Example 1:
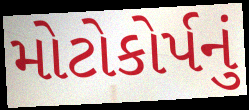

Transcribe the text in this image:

મોટોકોર્પનું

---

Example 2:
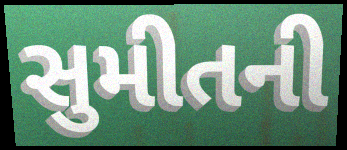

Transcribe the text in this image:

સુમીતની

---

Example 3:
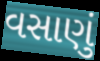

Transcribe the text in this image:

વસાણું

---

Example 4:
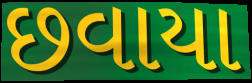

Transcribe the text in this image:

છવાયા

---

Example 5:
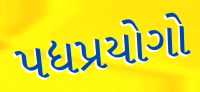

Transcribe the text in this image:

પદ્યપ્રયોગો